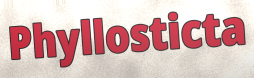
Phyllosticta